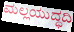
ಮಲ್ಲಯುದ್ಧದಿ